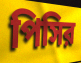
পিসির